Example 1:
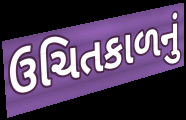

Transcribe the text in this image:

ઉચિતકાળનું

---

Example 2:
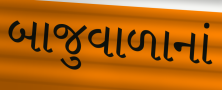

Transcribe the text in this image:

બાજુવાળાનાં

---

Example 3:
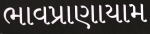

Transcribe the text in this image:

ભાવપ્રાણાયામ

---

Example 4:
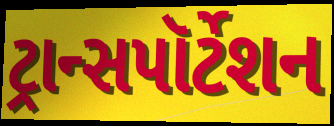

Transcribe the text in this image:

ટ્રાન્સપૉર્ટેશન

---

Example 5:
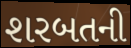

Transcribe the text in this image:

શરબતની